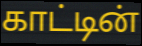
காட்டின்